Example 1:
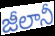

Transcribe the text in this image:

జీలానీ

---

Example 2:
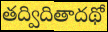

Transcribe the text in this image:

తద్విదితాదథో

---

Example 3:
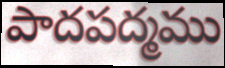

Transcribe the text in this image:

పాదపద్మము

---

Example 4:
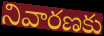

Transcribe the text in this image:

నివారణకు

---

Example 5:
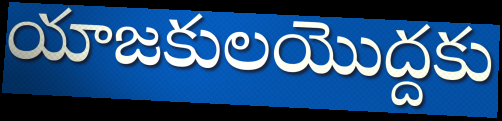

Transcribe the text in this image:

యాజకులయొద్దకు